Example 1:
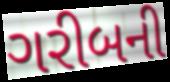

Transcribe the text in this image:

ગરીબની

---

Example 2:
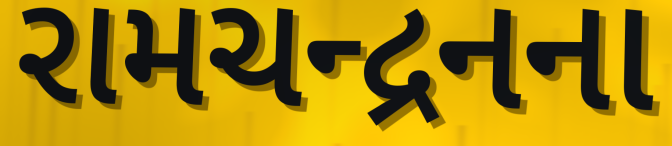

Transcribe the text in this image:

રામચન્દ્રનના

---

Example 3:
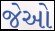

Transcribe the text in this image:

જેઓ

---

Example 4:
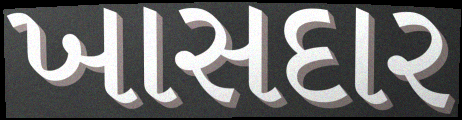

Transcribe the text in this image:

ખાસદાર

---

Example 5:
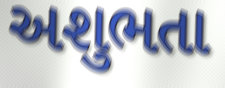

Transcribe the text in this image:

અશુભતા